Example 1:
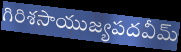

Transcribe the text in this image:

గిరిశసాయుజ్యపదవీమ్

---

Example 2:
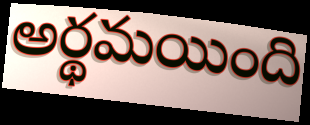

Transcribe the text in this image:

అర్థమయింది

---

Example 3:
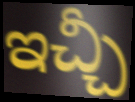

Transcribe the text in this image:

ఇచ్చీ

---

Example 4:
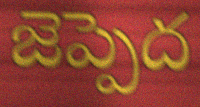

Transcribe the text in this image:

జెప్పెద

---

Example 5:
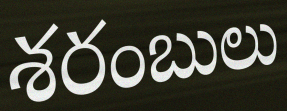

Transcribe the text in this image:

శరంబులు